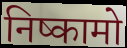
निष्कामो